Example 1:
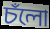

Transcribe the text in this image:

চঁলো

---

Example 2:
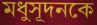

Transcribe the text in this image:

মধুসূদনকে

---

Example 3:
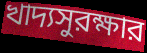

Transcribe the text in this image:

খাদ্যসুরক্ষার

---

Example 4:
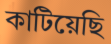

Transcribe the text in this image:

কাটিয়েছি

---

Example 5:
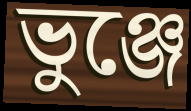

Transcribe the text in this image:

ভুঞ্জে